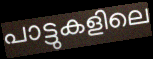
പാട്ടുകളിലെ